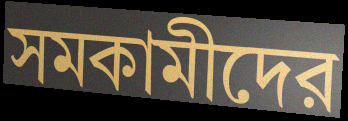
সমকামীদের